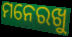
ମନେରଖୁ